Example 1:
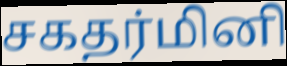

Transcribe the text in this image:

சகதர்மினி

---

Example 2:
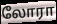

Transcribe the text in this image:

லோரா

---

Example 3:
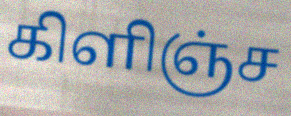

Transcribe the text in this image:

கிளிஞ்ச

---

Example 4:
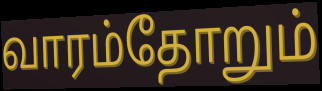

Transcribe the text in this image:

வாரம்தோறும்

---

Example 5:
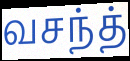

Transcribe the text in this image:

வசந்த்